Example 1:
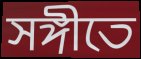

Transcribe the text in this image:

সঙ্গীতে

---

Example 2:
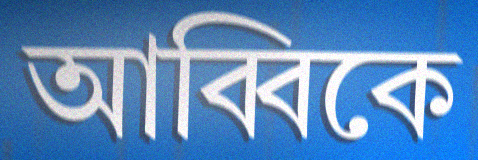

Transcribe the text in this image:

আব্বিকে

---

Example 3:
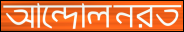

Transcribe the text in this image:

আন্দোলনরত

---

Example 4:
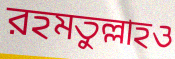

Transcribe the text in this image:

রহমতুল্লাহও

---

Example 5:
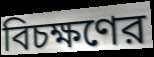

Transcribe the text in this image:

বিচক্ষণের